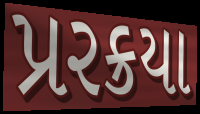
પ્રરક્રયા